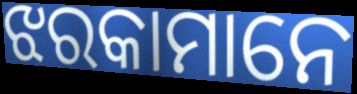
ଝରକାମାନେ